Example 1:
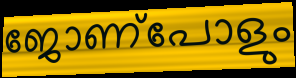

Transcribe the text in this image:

ജോണ്പോളും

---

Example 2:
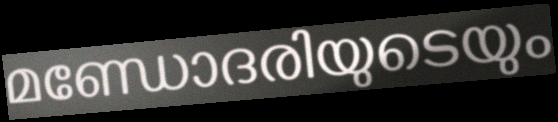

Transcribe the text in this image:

മണ്ഡോദരിയുടെയും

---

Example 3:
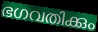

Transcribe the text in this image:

ഭഗവതിക്കും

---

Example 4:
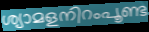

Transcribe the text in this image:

ശ്യാമളനിറംപൂണ്ട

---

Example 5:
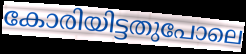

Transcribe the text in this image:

കോരിയിട്ടതുപോലെ